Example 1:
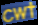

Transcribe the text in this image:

cwt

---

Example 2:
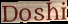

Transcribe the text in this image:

Doshi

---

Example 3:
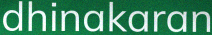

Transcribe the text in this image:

dhinakaran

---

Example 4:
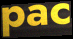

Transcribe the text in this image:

pac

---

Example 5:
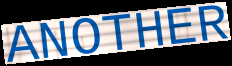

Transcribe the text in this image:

ANOTHER